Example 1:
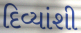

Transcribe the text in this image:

દિવ્યાંશી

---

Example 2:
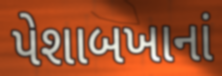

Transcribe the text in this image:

પેશાબખાનાં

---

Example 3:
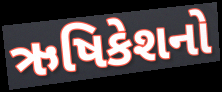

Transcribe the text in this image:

ઋષિકેશનો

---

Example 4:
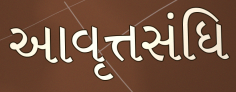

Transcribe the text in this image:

આવૃત્તસંધિ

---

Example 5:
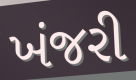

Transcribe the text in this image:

ખંજરી